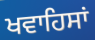
ਖਵਾਹਿਸਾਂ